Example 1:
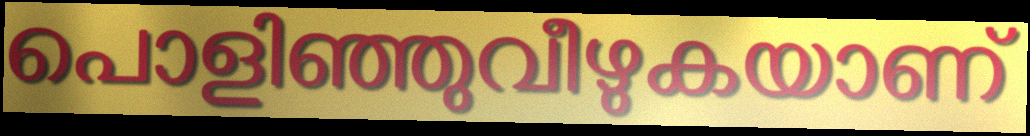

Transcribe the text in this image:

പൊളിഞ്ഞുവീഴുകയാണ്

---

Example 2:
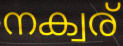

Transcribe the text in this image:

നക്വര്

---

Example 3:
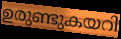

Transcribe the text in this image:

ഉരുണ്ടുകയറി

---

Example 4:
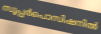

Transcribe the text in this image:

സൂപ്പർപൊസിഷനിൽ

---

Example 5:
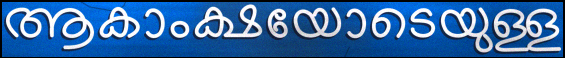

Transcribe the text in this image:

ആകാംക്ഷയോടെയുള്ള